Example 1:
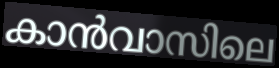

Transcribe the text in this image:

കാൻവാസിലെ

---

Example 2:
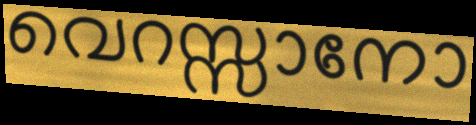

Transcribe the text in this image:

വെറസ്സാനോ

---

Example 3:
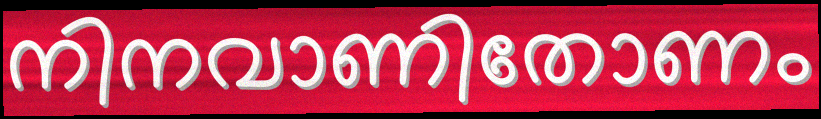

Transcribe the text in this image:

നിനവാണിതോണം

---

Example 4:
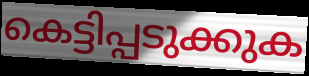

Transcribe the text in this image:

കെട്ടിപ്പടുക്കുക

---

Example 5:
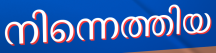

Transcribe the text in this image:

നിന്നെത്തിയ